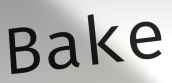
Bake